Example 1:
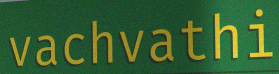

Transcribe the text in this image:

vachvathi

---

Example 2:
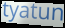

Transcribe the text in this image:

tyatun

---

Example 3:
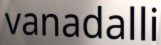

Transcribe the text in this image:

vanadalli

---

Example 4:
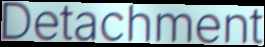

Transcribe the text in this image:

Detachment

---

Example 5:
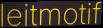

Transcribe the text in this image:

leitmotif